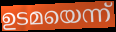
ഉടമയെന്ന്